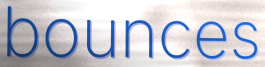
bounces